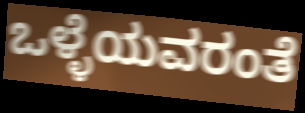
ಒಳ್ಳೆಯವರಂತೆ